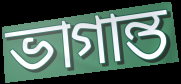
ভাগান্ত